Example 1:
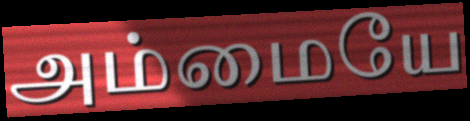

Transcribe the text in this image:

அம்மையே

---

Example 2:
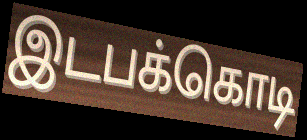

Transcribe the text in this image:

இடபக்கொடி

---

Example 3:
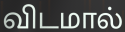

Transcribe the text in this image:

விடமால்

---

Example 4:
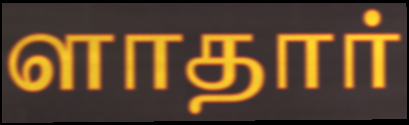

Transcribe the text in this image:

ளாதார்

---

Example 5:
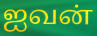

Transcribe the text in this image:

ஐவன்